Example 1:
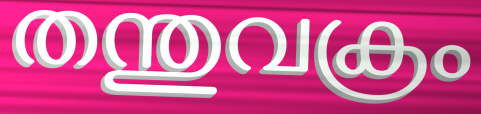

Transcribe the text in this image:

തന്തുവക്രം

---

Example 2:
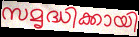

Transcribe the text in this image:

സമൃദ്ധിക്കായി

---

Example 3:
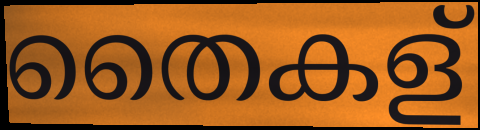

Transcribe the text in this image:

തൈകള്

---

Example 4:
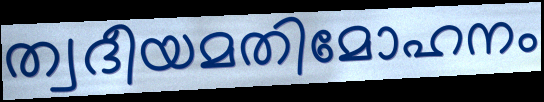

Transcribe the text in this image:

ത്വദീയമതിമോഹനം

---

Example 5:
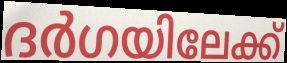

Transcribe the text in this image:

ദർഗയിലേക്ക്